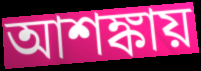
আশঙ্কায়